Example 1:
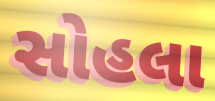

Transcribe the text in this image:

સોહલા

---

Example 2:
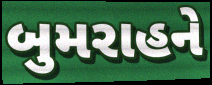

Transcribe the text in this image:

બુમરાહને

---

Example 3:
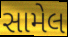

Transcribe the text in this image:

સામેલ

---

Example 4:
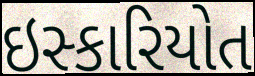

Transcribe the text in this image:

ઇસ્કારિયોત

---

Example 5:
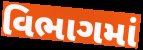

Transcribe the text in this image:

વિભાગમાં